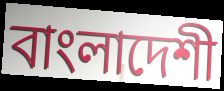
বাংলাদেশী